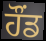
ਹੌਂਡ